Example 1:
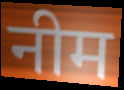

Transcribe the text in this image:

नीम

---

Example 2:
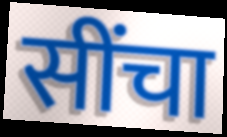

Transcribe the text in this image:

सींचा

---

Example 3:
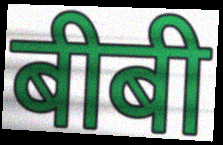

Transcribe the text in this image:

बीबी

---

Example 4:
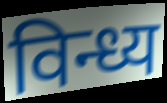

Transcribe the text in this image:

विन्ध्य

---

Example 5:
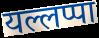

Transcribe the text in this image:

यल्लप्पा